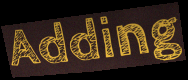
Adding